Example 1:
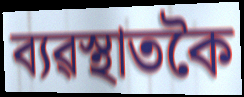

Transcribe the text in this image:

ব্যৱস্থাতকৈ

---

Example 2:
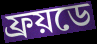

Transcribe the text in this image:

ফ্ৰয়ডে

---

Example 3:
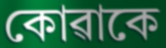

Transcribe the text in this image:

কোৱাকে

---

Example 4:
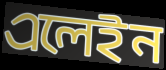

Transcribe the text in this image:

এলেইন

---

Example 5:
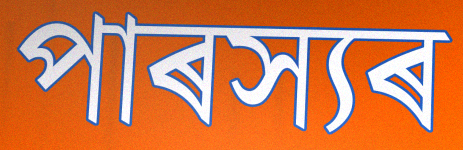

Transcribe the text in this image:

পাৰস্যৰ